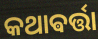
କଥାଵର୍ତ୍ତା